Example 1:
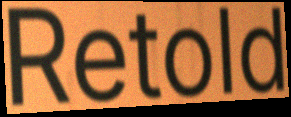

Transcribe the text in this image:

Retold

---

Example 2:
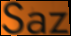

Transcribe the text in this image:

Saz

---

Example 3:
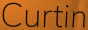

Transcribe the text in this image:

Curtin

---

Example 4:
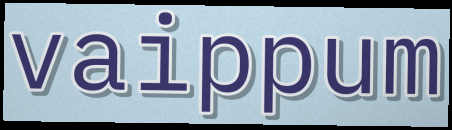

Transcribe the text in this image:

vaippum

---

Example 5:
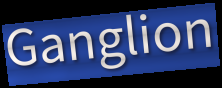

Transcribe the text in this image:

Ganglion